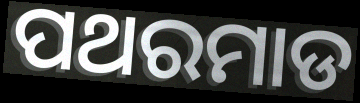
ପଥରମାଡ